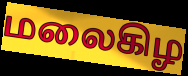
மலைகிழ